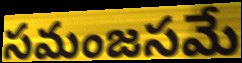
సమంజసమే